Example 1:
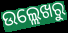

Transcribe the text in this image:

ଉଲ୍ଲେଖରୁ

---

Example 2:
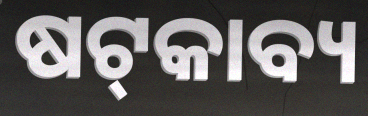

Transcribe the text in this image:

ଷଟ୍‌କାବ୍ୟ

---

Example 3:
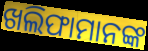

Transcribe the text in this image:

ଖଲିଫାମାନଙ୍କ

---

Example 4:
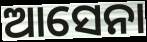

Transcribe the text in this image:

ଆସେନା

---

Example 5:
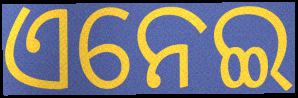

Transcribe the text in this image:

ଏନେଇ